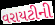
વરાયટીની